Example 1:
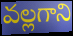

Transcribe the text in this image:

వల్లగాని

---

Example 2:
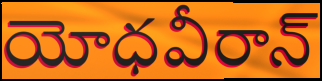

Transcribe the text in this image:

యోధవీరాన్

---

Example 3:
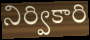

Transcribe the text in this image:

నిర్వికారి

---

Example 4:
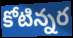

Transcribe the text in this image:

కోటిన్నర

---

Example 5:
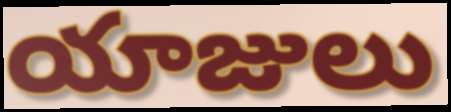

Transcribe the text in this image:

యాజులు